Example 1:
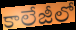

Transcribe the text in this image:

కాలేజీలో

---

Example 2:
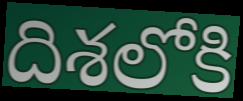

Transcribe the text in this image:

దిశలోకి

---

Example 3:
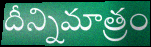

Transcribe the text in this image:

దీన్నిమాత్రం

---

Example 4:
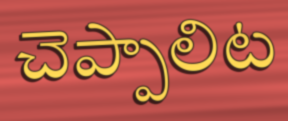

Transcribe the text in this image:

చెప్పాలిట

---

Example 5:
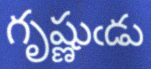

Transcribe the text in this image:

గృష్ణుఁడు